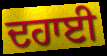
ਦਹਾਈ